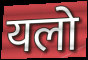
यलो